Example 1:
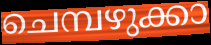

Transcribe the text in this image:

ചെമ്പഴുക്കാ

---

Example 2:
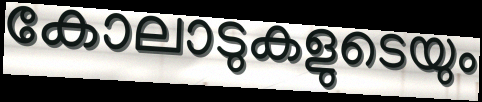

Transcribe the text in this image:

കോലാടുകളുടെയും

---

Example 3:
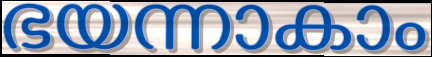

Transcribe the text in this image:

ഭയന്നാകാം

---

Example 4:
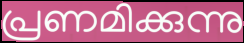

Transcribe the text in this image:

പ്രണമിക്കുന്നു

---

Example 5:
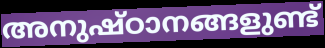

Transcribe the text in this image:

അനുഷ്ഠാനങ്ങളുണ്ട്